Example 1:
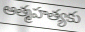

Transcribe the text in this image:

ఆత్మహత్యకు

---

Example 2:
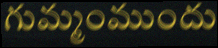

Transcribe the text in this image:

గుమ్మంముందు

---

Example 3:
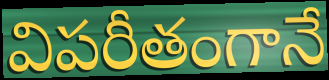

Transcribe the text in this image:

విపరీతంగానే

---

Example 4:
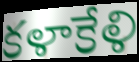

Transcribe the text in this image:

కళాకేళి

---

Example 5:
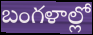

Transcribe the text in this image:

బంగళాల్లో